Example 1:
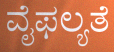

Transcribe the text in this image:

ವೈಫಲ್ಯತೆ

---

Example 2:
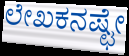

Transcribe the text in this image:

ಲೇಖಕನಷ್ಟೇ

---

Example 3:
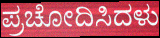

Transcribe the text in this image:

ಪ್ರಚೋದಿಸಿದಳು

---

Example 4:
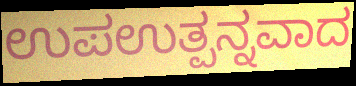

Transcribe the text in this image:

ಉಪಉತ್ಪನ್ನವಾದ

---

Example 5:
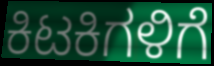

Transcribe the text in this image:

ಕಿಟಕಿಗಳಿಗೆ